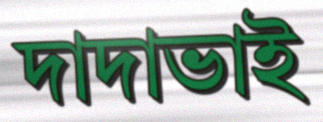
দাদাভাই